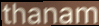
thanam